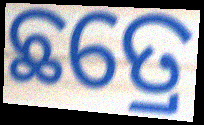
ଛତ୍ରେ